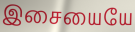
இசையையே